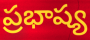
ప్రభాష్య